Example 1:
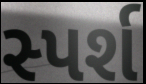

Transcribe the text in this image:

સ્પર્શ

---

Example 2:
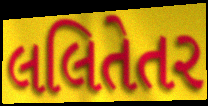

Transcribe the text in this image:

લલિતેતર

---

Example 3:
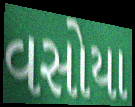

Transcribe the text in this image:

વસોયા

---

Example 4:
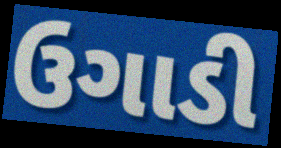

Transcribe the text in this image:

ઉગાડી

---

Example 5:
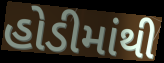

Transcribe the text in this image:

હોડીમાંથી